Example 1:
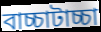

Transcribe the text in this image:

বাচ্চাটাচ্চা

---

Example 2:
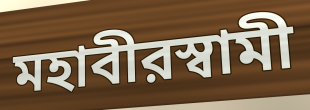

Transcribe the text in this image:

মহাবীরস্বামী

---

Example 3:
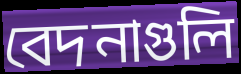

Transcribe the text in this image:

বেদনাগুলি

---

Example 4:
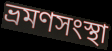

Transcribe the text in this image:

ভ্রমণসংস্থা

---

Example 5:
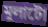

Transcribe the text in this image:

মুলাটো